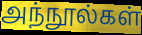
அந்நூல்கள்